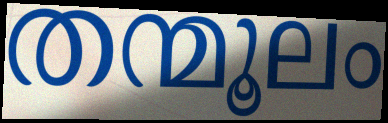
തന്മൂലം